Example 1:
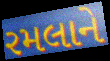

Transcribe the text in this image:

રમલાને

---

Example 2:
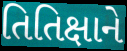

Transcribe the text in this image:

તિતિક્ષાને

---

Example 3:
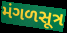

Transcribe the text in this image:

મંગળસૂત્ર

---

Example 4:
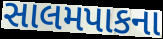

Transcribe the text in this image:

સાલમપાકના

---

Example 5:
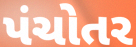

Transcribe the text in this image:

પંચોતર